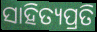
ସାହିତ୍ୟପ୍ରତି